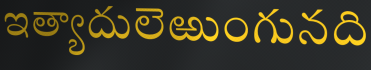
ఇత్యాదులెఱుంగునది